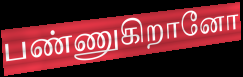
பண்ணுகிறானோ